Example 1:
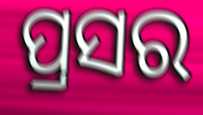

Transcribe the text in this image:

ପ୍ରସର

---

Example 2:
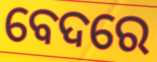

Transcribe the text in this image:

ବେଦରେ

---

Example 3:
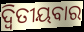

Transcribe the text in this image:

ଦ୍ୱିତୀୟବାର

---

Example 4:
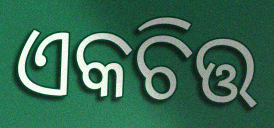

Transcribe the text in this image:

ଏକଚିତ୍ତ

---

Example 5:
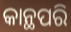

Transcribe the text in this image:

କାନ୍ଥପରି